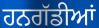
ਹਨਗੱਡੀਆਂ